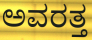
ಅವರತ್ತ